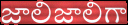
జాలిజాలిగా